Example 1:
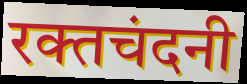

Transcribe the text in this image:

रक्तचंदनी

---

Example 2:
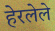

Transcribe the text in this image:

हेरलेले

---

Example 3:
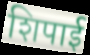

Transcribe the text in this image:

शिपाई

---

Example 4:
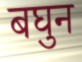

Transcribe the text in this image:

बघुन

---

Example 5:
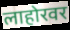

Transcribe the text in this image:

लाहोरवर